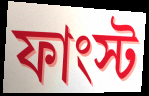
ফাংস্ট